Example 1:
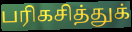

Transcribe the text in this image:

பரிகசித்துக்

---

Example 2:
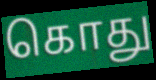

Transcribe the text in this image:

கொது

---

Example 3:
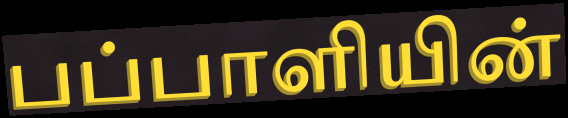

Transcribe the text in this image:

பப்பாளியின்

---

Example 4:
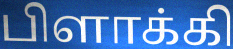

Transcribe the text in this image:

பிளாக்கி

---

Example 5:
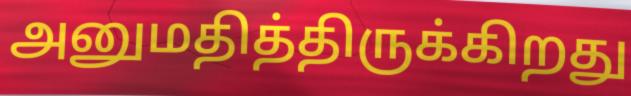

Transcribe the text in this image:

அனுமதித்திருக்கிறது